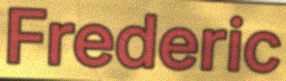
Frederic